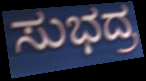
ಸುಭದ್ರ